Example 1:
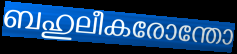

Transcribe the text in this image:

ബഹുലീകരോന്തോ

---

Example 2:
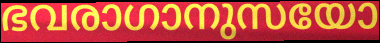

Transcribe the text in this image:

ഭവരാഗാനുസയോ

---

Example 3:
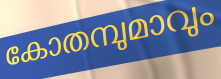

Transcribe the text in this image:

കോതമ്പുമാവും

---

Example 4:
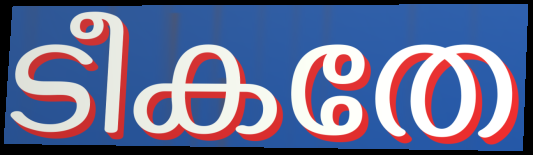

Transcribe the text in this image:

ടീകതേ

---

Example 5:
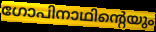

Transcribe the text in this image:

ഗോപിനാഥിന്റെയും